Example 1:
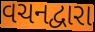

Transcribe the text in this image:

વચનદ્વારા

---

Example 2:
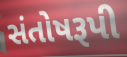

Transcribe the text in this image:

સંતોષરૂપી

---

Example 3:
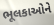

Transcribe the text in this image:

ભૂલકાઓને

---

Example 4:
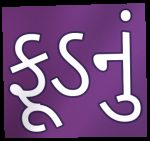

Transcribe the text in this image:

ફૂડનું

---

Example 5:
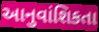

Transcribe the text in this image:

આનુવાંશિકતા